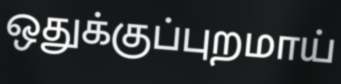
ஒதுக்குப்புறமாய்